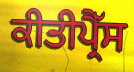
ਕੀਤੀਪ੍ਰੈੱਸ